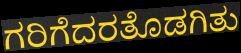
ಗರಿಗೆದರತೊಡಗಿತು